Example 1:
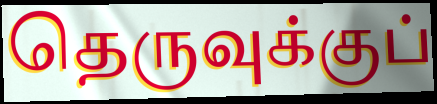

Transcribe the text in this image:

தெருவுக்குப்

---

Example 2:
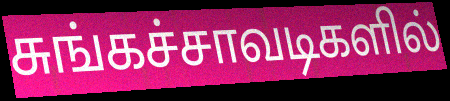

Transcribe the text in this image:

சுங்கச்சாவடிகளில்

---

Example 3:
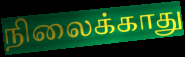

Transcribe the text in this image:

நிலைக்காது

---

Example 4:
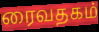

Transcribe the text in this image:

ரைவதகம்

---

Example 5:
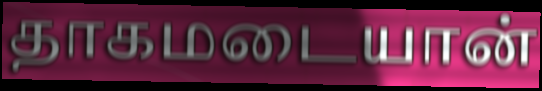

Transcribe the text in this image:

தாகமடையான்